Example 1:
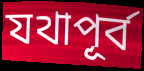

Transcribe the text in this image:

যথাপূর্ব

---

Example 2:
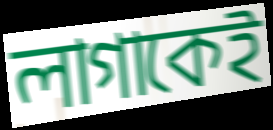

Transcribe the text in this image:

লাগাকেই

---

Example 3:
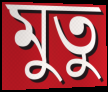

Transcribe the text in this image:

মুতু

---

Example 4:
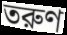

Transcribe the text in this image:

তরুণ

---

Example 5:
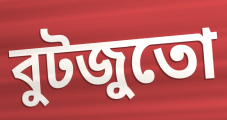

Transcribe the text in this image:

বুটজুতো